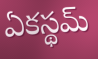
ఏకస్థమ్